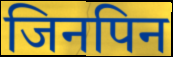
जिनपिन